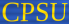
CPSU